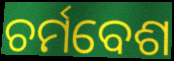
ଚର୍ମବେଶ